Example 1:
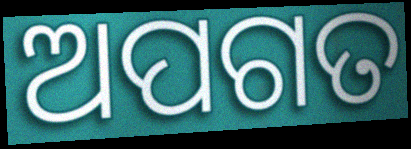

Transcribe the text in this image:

ଅପଗତ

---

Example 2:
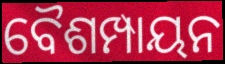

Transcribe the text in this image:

ବୈଶମ୍ପାୟନ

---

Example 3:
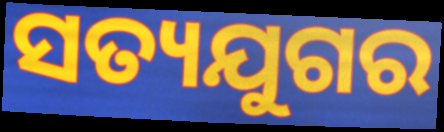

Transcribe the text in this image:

ସତ୍ୟଯୁଗର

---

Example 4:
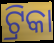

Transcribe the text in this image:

ଟ୍ରିକା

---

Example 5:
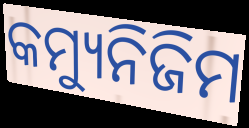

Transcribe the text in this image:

କମ୍ୟୁନିଜିମ